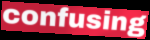
confusing